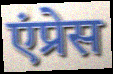
एंप्रेस